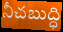
నీచబుద్ధి